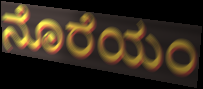
ನೊರೆಯಂ